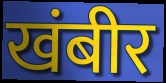
खंबीर